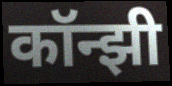
कॉन्झी